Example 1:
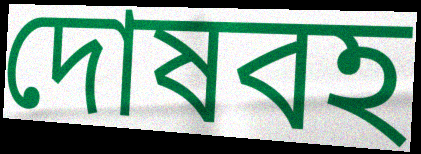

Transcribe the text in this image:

দোষবহ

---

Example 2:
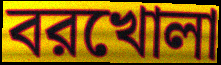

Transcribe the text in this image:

বরখোলা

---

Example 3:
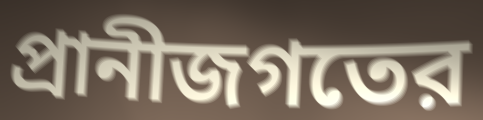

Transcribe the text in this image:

প্রানীজগতের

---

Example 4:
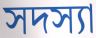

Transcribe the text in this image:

সদস্যা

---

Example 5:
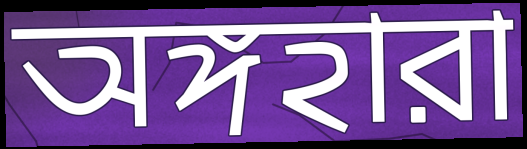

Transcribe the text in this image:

অঙ্গহারা